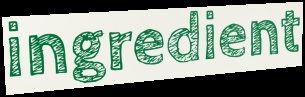
ingredient